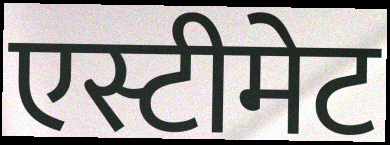
एस्टीमेट